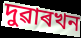
দুৱাৰখন